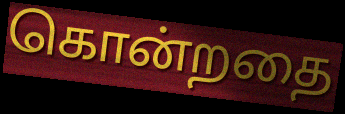
கொன்றதை